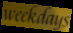
weekdays